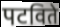
पटविते